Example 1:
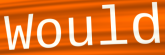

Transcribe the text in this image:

Would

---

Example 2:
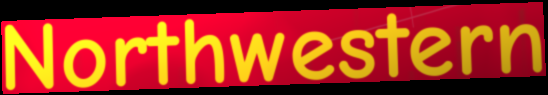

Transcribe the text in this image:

Northwestern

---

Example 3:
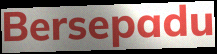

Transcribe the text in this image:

Bersepadu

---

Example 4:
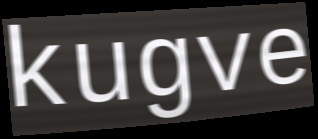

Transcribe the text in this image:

kugve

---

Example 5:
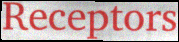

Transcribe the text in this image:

Receptors